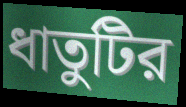
ধাতুটির